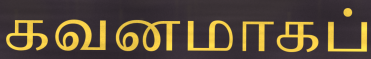
கவனமாகப்